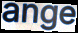
ange